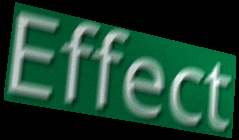
Effect